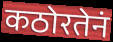
कठोरतेनं